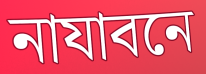
নাযাবনে